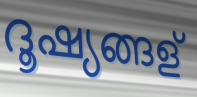
ദൂഷ്യങ്ങള്